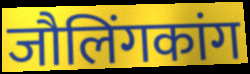
जौलिंगकांग